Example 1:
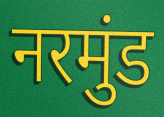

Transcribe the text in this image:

नरमुंड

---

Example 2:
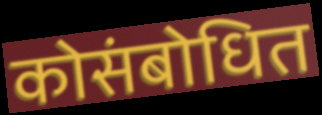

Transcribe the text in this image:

कोसंबोधित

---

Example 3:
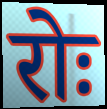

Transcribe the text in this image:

रोः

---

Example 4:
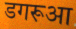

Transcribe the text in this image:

डगरूआ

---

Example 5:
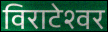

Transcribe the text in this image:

विराटेश्वर